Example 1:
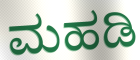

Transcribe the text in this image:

ಮಹಡಿ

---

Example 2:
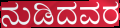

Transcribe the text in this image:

ನುಡಿದವರ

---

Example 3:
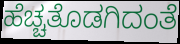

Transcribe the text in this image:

ಹೆಚ್ಚತೊಡಗಿದಂತೆ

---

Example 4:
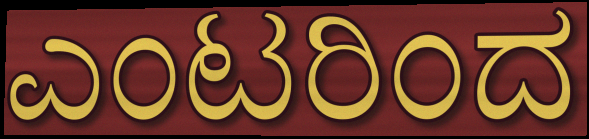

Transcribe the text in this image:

ಎಂಟರಿಂದ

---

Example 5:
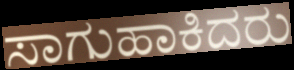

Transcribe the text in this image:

ಸಾಗುಹಾಕಿದರು